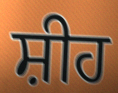
ਸ਼ੀਹ